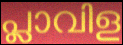
പ്ലാവിള